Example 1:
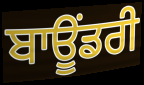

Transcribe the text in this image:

ਬਾਊਂਡਰੀ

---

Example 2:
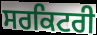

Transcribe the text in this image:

ਸਰਕਿਟਰੀ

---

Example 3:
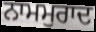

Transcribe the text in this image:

ਨਾਮਮੁਰਾਦ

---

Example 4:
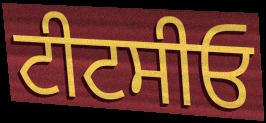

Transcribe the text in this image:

ਟੀਟਸੀਓ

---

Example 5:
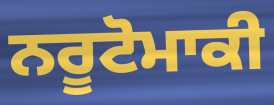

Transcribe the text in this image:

ਨਰੂਟੋਮਾਕੀ